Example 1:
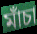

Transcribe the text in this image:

মাঁচা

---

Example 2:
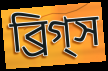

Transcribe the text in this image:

ব্রিগ্‌স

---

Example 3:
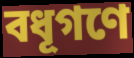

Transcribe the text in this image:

বধূগণে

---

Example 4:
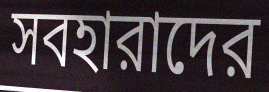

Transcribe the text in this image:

সবহারাদের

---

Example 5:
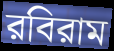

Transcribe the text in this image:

রবিরাম